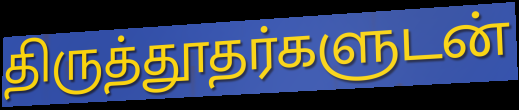
திருத்தூதர்களுடன்